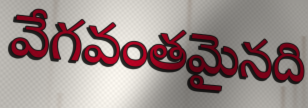
వేగవంతమైనది